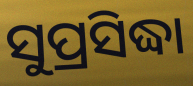
ସୁପ୍ରସିଦ୍ଧା